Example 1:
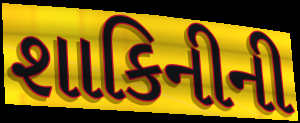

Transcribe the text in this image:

શાકિનીની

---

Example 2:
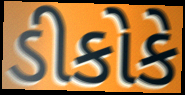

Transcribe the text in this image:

ડીકોકે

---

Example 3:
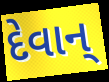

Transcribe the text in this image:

દેવાન્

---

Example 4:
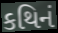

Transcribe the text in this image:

કથિનં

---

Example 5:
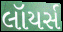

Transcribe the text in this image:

લૉયર્સ